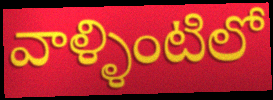
వాళ్ళింటిలో